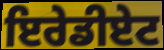
ਇਰੇਡੀਏਟ